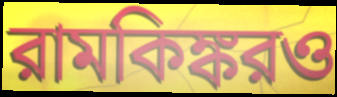
রামকিঙ্করও